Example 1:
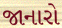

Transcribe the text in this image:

જાનારો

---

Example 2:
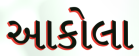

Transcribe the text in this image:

આકોલા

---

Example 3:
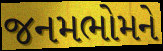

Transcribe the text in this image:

જનમભોમને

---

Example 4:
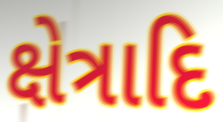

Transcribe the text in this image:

ક્ષેત્રાદિ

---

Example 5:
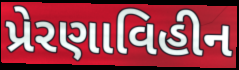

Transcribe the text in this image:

પ્રેરણાવિહીન